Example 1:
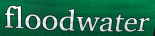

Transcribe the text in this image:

floodwater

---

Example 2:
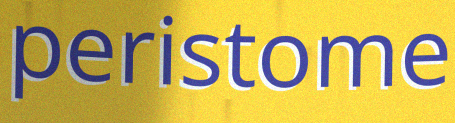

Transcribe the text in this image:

peristome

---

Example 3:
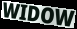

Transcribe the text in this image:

WIDOW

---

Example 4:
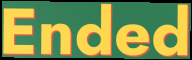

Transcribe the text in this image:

Ended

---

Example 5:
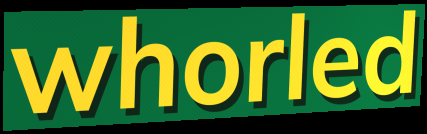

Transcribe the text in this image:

whorled